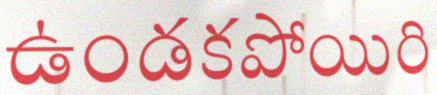
ఉండకపోయిరి